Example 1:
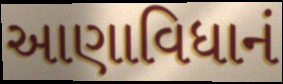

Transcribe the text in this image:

આણાવિધાનં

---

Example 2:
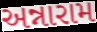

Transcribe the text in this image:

અન્નારામ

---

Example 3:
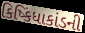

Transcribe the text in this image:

કિષ્કિંધાકાંડની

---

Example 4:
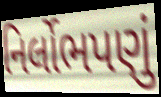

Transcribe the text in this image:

નિર્લોભપણું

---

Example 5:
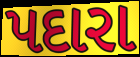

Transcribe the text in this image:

પદારા